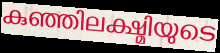
കുഞ്ഞിലക്ഷ്മിയുടെ